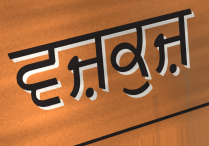
ਵਜ਼ਕੁਜ਼